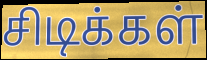
சிடிக்கள்